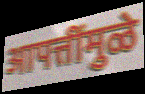
आपत्तींमुळे